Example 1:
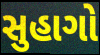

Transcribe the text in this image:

સુહાગો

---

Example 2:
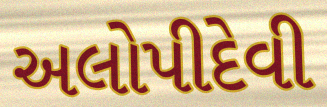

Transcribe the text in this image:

અલોપીદેવી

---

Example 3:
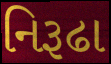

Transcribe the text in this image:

નિરૂઢા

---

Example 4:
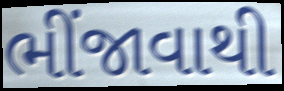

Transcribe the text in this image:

ભીંજાવાથી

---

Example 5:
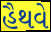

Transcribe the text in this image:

હૈથવે